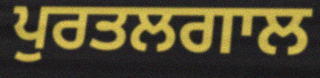
ਪੁਰਤਲਗਾਲ